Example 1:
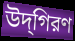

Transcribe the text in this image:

উদ্‌গিরণ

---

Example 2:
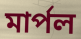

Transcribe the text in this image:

মার্পল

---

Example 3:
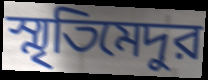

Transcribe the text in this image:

স্মৃতিমেদুর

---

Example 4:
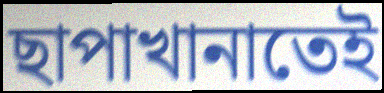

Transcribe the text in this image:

ছাপাখানাতেই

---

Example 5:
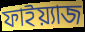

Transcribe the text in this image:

ফাইয়্যাজ